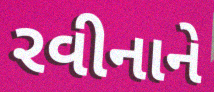
રવીનાને